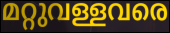
മറ്റുവള്ളവരെ